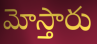
మోస్తారు